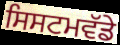
ਸਿਸਟਮਵੱਡੇ